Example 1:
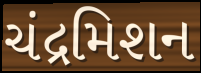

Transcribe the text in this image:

ચંદ્રમિશન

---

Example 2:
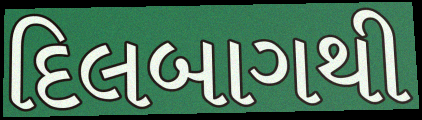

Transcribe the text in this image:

દિલબાગથી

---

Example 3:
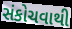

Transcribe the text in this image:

સંકોચવાથી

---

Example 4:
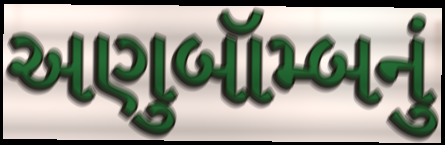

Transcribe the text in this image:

અણુબૉમ્બનું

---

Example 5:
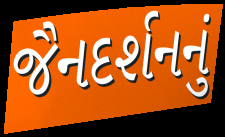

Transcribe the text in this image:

જૈનદર્શનનું